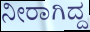
ನೀರಾಗಿದ್ದ